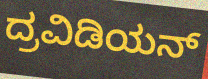
ದ್ರವಿಡಿಯನ್